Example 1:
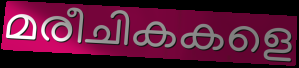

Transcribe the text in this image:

മരീചികകളെ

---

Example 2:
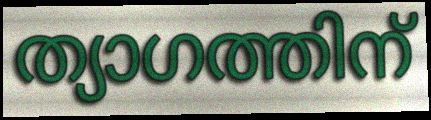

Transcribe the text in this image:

ത്യാഗത്തിന്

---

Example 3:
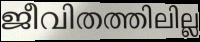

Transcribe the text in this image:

ജീവിതത്തിലില്ല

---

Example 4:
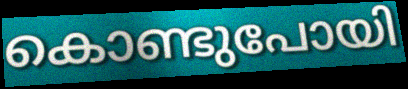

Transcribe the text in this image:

കൊണ്ടുപോയി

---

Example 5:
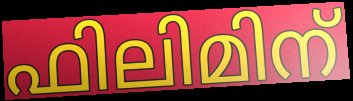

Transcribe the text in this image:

ഫിലിമിന്